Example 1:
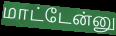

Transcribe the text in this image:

மாட்டேன்னு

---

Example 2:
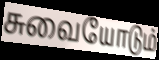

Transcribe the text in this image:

சுவையோடும்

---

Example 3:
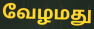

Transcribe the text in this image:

வேழமது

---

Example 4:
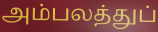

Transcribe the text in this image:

அம்பலத்துப்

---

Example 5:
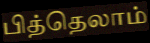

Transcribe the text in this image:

பித்தெலாம்